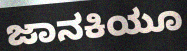
ಜಾನಕಿಯೂ